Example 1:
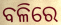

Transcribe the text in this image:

ବଳିରେ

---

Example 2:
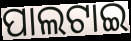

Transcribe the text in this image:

ପାଲଟାଇ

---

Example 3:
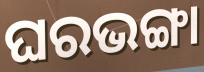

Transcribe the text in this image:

ଘରଭଙ୍ଗା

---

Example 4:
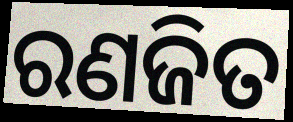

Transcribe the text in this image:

ରଣଜିତ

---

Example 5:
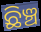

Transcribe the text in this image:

ଛିଞ୍ଚ